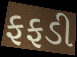
ફફડી